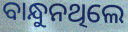
ବାନ୍ଧୁନଥିଲେ